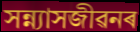
সন্ন্যাসজীৱনৰ